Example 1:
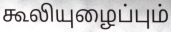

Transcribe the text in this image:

கூலியுழைப்பும்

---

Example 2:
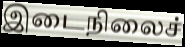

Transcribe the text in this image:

இடைநிலைச்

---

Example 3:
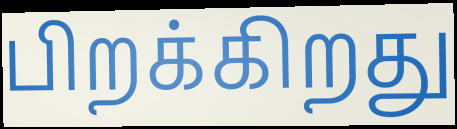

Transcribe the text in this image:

பிறக்கிறது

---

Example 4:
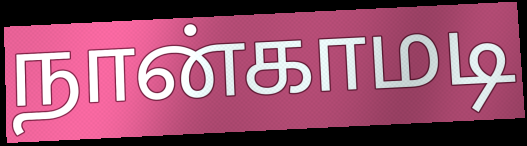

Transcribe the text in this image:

நான்காமடி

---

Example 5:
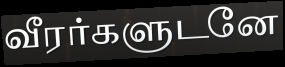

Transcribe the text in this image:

வீரர்களுடனே